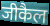
जीकैल